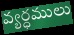
వ్యర్ధములు